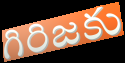
గిరిజకు